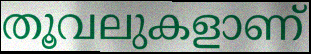
തൂവലുകളാണ്